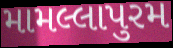
મામલ્લાપુરમ